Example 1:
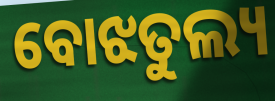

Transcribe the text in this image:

ବୋଝତୁଲ୍ୟ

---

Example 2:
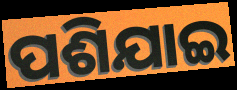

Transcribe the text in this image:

ପଶିଯାଇ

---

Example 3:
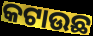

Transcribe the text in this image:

କଟାଉଛ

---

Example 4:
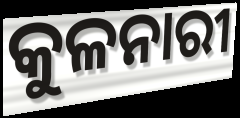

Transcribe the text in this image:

କୁଳନାରୀ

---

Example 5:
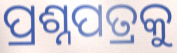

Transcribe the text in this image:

ପ୍ରଶ୍ନପତ୍ରକୁ